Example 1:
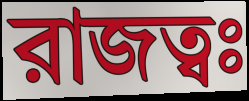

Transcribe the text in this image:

রাজত্বঃ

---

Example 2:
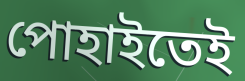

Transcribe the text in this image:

পোহাইতেই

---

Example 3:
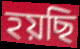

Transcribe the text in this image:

হয়ছি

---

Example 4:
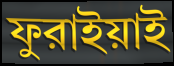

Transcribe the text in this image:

ফুরাইয়াই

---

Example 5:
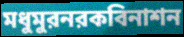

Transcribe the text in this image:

মধুমুরনরকবিনাশন